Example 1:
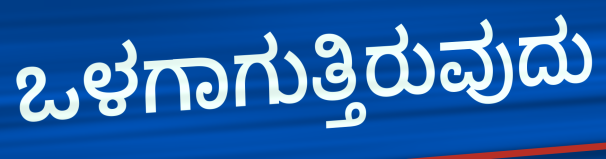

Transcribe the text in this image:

ಒಳಗಾಗುತ್ತಿರುವುದು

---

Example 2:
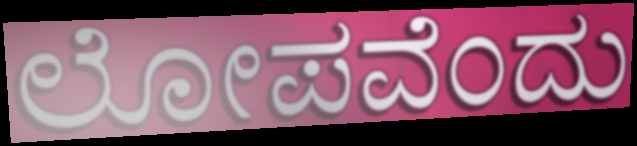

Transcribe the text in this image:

ಲೋಪವೆಂದು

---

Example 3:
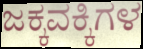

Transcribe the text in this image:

ಜಕ್ಕವಕ್ಕಿಗಳ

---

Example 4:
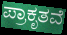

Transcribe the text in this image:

ಪ್ರಾಕೃತವೆ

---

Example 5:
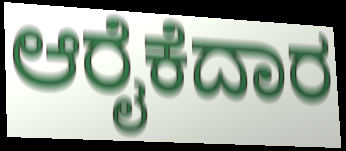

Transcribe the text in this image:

ಆರೈಕೆದಾರ